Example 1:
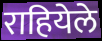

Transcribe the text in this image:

राहियेले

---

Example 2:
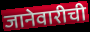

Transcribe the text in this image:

जानेवारीची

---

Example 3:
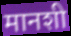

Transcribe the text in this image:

मानशी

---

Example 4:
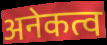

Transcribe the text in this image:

अनेकत्व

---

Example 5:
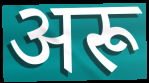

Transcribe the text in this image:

अरू